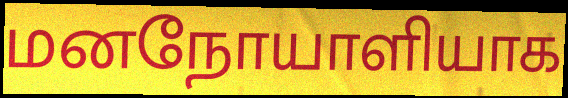
மனநோயாளியாக